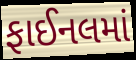
ફાઈનલમાં